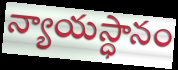
న్యాయస్ధానం